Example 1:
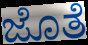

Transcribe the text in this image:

ಜೊತೆ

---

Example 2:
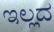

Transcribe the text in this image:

ಇಲ್ಲದ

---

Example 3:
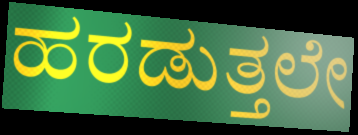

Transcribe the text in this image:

ಹರಡುತ್ತಲೇ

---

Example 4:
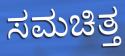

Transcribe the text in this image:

ಸಮಚಿತ್ತ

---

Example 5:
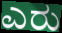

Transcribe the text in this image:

ಎರು